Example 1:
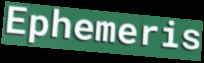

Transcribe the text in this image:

Ephemeris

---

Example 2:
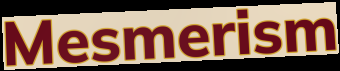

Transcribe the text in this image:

Mesmerism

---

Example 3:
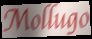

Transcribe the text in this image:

Mollugo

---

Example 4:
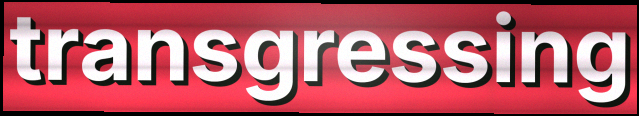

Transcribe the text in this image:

transgressing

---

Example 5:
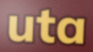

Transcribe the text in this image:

uta